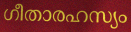
ഗീതാരഹസ്യം